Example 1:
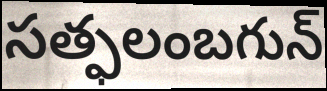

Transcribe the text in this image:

సత్ఫలంబగున్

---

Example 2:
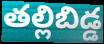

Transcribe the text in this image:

తల్లిబిడ్డ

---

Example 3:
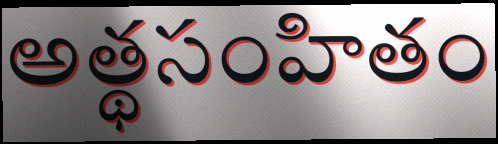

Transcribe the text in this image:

అత్థసంహితం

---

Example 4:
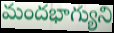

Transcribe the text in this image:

మందభాగ్యుని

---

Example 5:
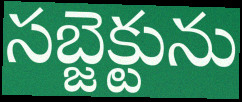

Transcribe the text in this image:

సబ్జెక్టును